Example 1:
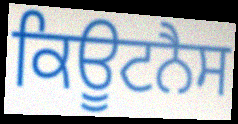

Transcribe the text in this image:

ਕਿਊਟਨੈਸ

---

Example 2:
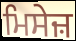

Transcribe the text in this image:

ਮਿਸੇਜ਼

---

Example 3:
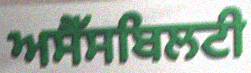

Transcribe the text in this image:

ਅਸੈੱਸਬਿਲਟੀ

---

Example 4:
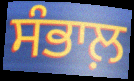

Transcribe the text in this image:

ਸੰਭਾਲ਼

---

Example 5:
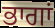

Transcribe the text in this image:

ਭਾਗਾਂ